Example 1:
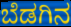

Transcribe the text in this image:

ಬೆಡಗಿನ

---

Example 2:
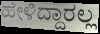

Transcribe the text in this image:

ಹೇಳಿದ್ದಾರಲ್ಲ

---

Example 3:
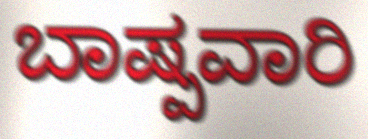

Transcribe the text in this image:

ಬಾಷ್ಪವಾರಿ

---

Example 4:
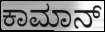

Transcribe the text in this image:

ಕಾಮಾನ್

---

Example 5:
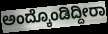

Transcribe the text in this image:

ಅಂದ್ಕೊಂಡಿದ್ದೀರಾ